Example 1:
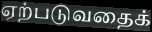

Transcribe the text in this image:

ஏற்படுவதைக்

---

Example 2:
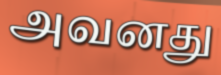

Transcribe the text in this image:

அவனது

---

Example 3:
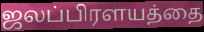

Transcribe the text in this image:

ஜலப்பிரளயத்தை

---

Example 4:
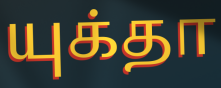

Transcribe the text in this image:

யுக்தா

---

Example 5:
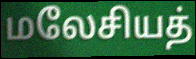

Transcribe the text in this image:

மலேசியத்